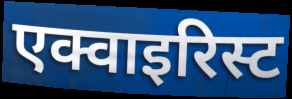
एक्वाइरिस्ट